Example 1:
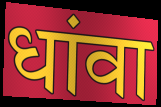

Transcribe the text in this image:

धांवा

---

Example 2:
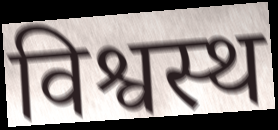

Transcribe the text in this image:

विश्वस्थ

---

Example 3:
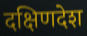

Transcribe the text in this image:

दक्षिणदेश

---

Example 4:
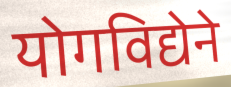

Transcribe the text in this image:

योगविद्येने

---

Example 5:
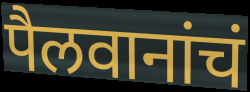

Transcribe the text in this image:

पैलवानांचं